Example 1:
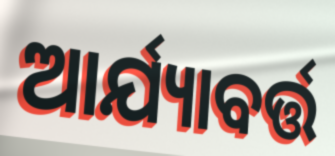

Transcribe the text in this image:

ଆର୍ଯ୍ୟାବର୍ତ୍ତ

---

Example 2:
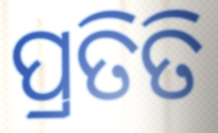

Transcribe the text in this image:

ପ୍ରତିତି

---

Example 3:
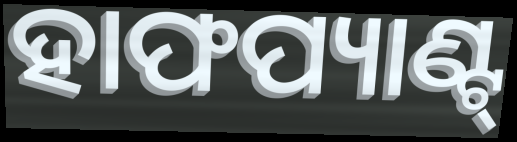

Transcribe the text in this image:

ହାଫପ୍ୟାଣ୍ଟ୍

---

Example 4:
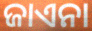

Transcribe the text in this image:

ଜାଏନା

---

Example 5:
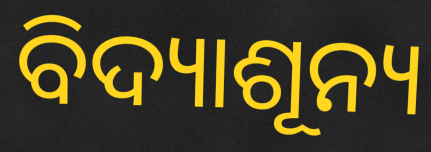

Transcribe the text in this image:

ବିଦ୍ୟାଶୂନ୍ୟ